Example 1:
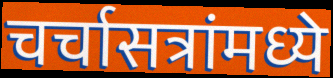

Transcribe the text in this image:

चर्चासत्रांमध्ये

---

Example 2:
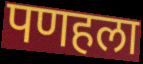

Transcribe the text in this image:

पणहला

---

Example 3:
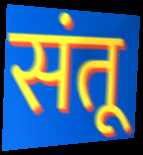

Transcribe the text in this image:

संतू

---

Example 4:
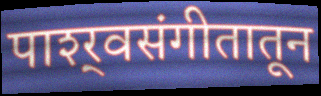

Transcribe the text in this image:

पाश्र्वसंगीतातून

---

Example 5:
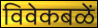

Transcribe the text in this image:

विवेकबळें